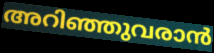
അറിഞ്ഞുവരാൻ